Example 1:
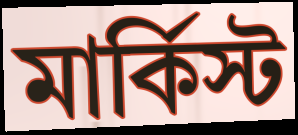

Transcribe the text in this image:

মার্কিস্ট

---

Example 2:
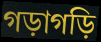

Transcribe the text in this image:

গড়াগড়ি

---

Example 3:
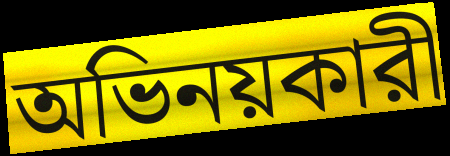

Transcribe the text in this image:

অভিনয়কারী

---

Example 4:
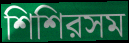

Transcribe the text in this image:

শিশিরসম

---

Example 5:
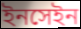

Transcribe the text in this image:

ইনসেইন